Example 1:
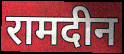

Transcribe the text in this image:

रामदीन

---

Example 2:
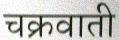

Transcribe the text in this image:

चक्रवाती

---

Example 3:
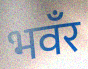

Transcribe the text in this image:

भवँर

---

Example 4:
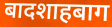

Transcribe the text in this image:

बादशाहबाग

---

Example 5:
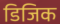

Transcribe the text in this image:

डिजिक